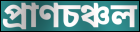
প্ৰাণচঞ্চল